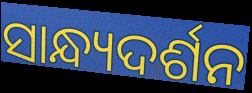
ସାନ୍ଧ୍ୟଦର୍ଶନ